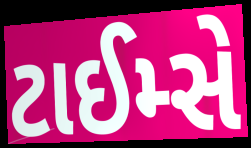
ટાઈમ્સે